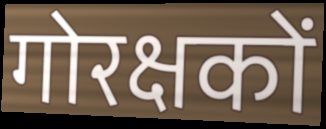
गोरक्षकों